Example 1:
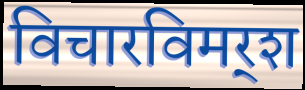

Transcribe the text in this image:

विचारविमर्श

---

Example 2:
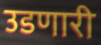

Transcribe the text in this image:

उडणारी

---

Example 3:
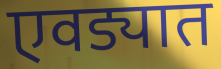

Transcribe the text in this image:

एवड्यात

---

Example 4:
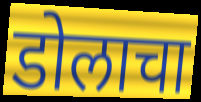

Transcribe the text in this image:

डोलाचा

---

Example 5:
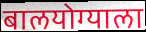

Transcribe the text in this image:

बालयोग्याला